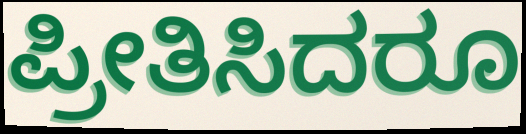
ಪ್ರೀತಿಸಿದರೂ